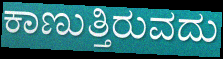
ಕಾಣುತ್ತಿರುವದು